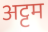
अट्टम